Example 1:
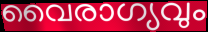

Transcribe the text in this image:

വൈരാഗ്യവും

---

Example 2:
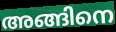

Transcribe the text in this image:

അങ്ങിനെ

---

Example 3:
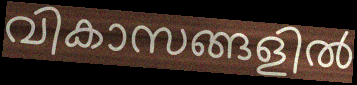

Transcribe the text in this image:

വികാസങ്ങളിൽ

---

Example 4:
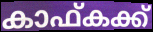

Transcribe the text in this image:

കാഫ്കക്ക്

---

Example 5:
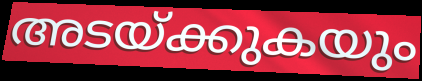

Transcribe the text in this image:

അടയ്ക്കുകയും